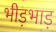
भीड़भाड़